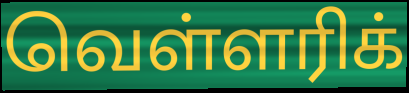
வெள்ளரிக்